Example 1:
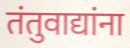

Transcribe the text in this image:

तंतुवाद्यांना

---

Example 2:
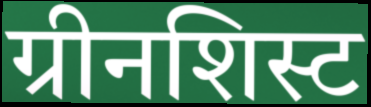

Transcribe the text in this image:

ग्रीनशिस्ट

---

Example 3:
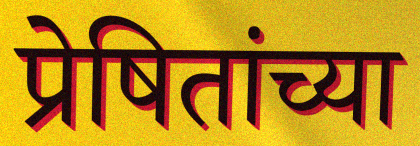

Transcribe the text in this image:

प्रेषितांच्या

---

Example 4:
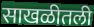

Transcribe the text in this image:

साखळीतली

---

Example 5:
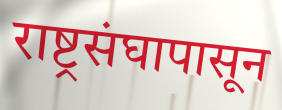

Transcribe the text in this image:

राष्ट्रसंघापासून